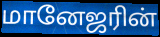
மானேஜரின்